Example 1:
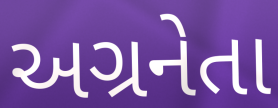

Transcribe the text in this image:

અગ્રનેતા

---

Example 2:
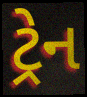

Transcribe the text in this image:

ટ્રેન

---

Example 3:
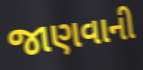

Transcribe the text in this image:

જાણવાની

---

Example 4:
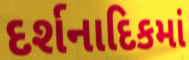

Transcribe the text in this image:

દર્શનાદિકમાં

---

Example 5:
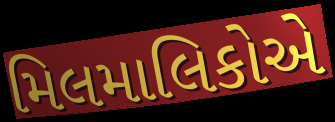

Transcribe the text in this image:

મિલમાલિકોએ